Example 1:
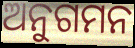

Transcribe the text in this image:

ଅନୁଗମନ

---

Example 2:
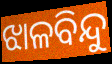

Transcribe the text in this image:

ଝାଳବିନ୍ଦୁ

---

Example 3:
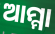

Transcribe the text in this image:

ଆମ୍ମା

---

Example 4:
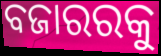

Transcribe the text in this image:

ବଜାରରକୁ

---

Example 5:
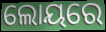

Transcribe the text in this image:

ଲୋୟରେ